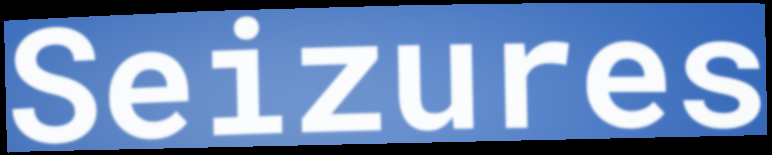
Seizures